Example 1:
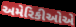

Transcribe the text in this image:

અમેરિકીઓએ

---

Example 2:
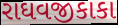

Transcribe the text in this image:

રાઘવજીકાકા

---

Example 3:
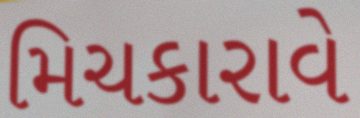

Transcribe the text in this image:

મિચકારાવે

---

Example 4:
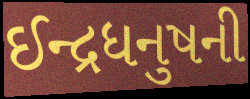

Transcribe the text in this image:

ઈન્દ્રધનુષની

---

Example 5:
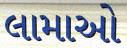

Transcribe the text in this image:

લામાઓ